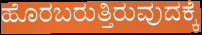
ಹೊರಬರುತ್ತಿರುವುದಕ್ಕೆ